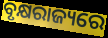
ବୃକ୍ଷରାଜ୍ୟରେ